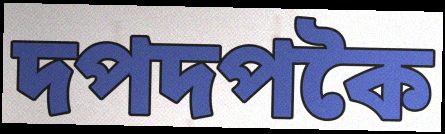
দপদপকৈ